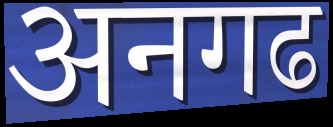
अनगढ